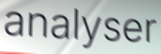
analyser